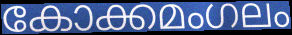
കോക്കമംഗലം